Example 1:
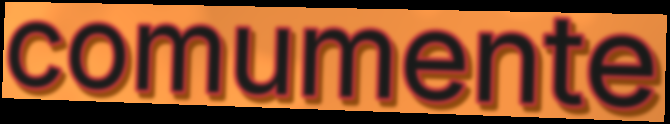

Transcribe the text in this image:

comumente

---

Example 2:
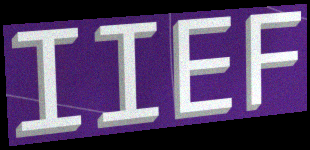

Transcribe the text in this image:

IIEF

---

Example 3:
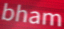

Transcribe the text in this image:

bham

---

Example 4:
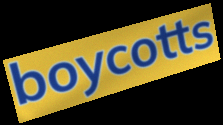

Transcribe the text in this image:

boycotts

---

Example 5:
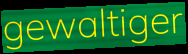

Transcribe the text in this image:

gewaltiger